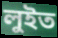
লুইত